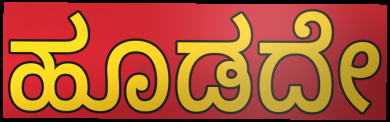
ಹೂಡದೇ